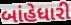
બાંહેધારી